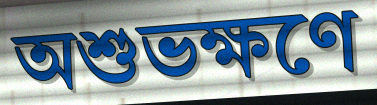
অশুভক্ষণে